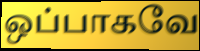
ஒப்பாகவே